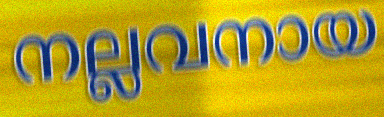
നല്ലവനായ